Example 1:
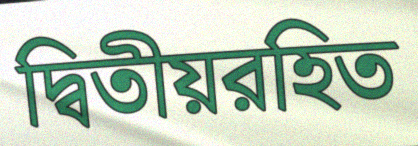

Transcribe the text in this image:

দ্বিতীয়রহিত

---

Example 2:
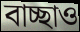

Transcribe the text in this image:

বাচ্ছাও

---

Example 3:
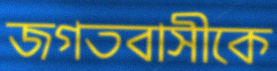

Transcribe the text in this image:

জগতবাসীকে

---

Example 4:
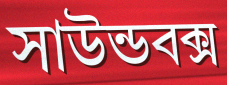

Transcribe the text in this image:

সাউন্ডবক্স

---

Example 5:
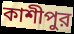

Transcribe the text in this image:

কাশীপুর